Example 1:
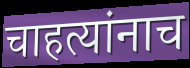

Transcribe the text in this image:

चाहत्यांनाच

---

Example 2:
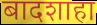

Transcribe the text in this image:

बादशाहा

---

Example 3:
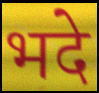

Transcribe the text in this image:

भदे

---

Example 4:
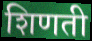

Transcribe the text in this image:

शिणती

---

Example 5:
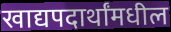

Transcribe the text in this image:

खाद्यपदार्थांमधील